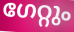
ഗേറ്റും